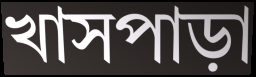
খাসপাড়া